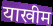
याखीम